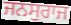
ਜਨਸੁਰਾਜ